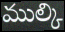
ముల్కి